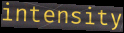
intensity